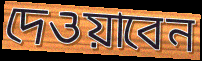
দেওয়াবেন